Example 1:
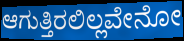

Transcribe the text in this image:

ಆಗುತ್ತಿರಲಿಲ್ಲವೇನೋ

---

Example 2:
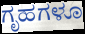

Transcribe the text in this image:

ಗೃಹಗಳೂ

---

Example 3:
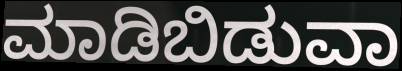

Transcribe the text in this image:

ಮಾಡಿಬಿಡುವಾ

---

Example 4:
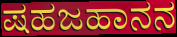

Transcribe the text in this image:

ಷಹಜಹಾನನ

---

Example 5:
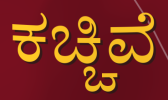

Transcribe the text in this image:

ಕಚ್ಚಿವೆ